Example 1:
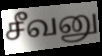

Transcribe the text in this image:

சீவனு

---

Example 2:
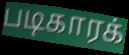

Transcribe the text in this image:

படிகாரக்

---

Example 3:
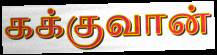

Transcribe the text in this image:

கக்குவான்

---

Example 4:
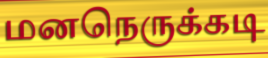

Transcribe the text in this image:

மனநெருக்கடி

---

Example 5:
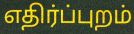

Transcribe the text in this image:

எதிர்ப்புறம்